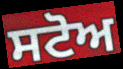
ਸਟੋਅ